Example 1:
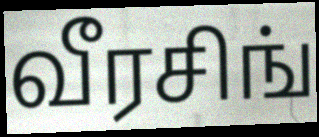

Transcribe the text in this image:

வீரசிங்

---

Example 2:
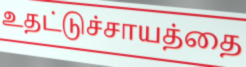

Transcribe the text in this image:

உதட்டுச்சாயத்தை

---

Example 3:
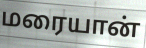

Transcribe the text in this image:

மரையான்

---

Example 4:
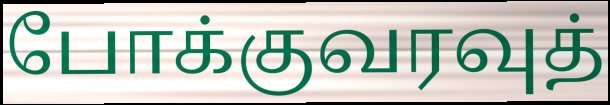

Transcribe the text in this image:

போக்குவரவுத்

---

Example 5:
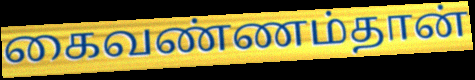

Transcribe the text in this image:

கைவண்ணம்தான்